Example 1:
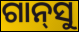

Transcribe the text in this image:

ଗାନ୍‍ସୁ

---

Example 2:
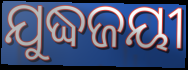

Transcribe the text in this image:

ଯୁଦ୍ଧଜୟୀ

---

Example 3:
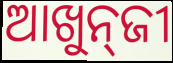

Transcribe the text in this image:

ଆଖୁନ୍‌ଜୀ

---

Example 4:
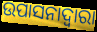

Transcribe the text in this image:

ଉପାସନାଦ୍ଵାରା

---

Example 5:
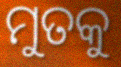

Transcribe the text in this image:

ମୁତକୁ